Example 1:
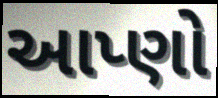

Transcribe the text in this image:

આપ્ણો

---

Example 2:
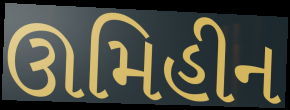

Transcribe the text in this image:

ઊમિહીન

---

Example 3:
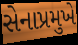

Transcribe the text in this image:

સેનાપ્રમુખે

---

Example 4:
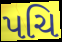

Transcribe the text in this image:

પચિ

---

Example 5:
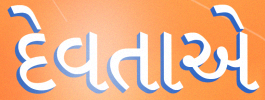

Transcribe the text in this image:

દેવતાએ